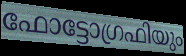
ഫോട്ടോഗ്രഫിയും